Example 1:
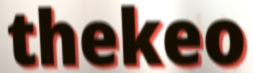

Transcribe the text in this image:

thekeo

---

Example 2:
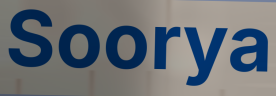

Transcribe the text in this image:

Soorya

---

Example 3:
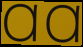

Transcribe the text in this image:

aa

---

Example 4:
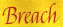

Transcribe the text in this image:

Breach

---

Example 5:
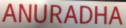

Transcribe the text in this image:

ANURADHA